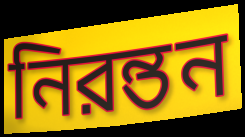
নিরন্তন